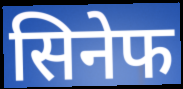
सिनेफ